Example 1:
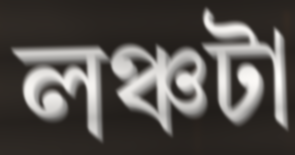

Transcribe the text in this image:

লঞ্চটা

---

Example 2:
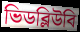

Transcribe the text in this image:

ভিডব্লিউবি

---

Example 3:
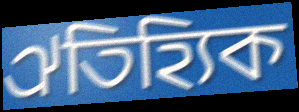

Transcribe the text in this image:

ঐতিহ্যিক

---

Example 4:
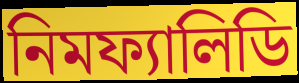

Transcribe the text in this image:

নিমফ্যালিডি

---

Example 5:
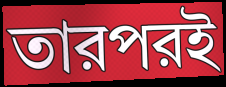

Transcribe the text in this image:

তারপরই